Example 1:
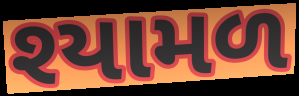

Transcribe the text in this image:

શ્યામળ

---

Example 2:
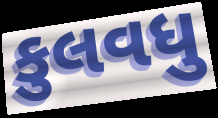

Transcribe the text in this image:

કુલવધુ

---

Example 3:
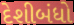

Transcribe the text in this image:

દેશીબંધો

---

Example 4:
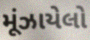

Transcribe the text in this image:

મૂંઝાયેલો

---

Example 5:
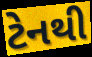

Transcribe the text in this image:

ટેનથી